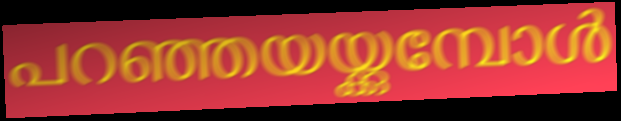
പറഞ്ഞയയ്ക്കുമ്പോൾ